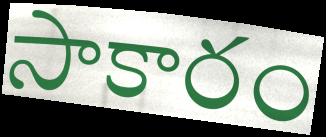
సాకారం